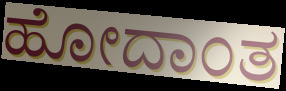
ಹೋದಾಂತ